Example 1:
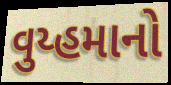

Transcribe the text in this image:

વુય્હમાનો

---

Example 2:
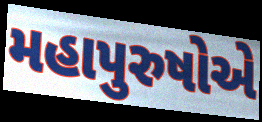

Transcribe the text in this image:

મહાપુરુષોએ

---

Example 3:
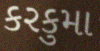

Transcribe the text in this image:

કરકુમા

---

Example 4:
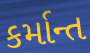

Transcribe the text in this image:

કર્માન્ત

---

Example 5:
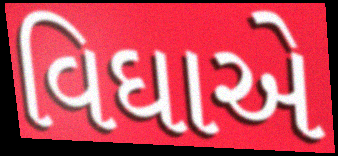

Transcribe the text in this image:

વિઘાએ